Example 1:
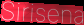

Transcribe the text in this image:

Sirisena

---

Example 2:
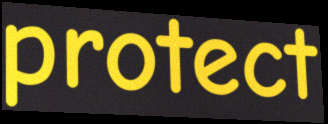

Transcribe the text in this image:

protect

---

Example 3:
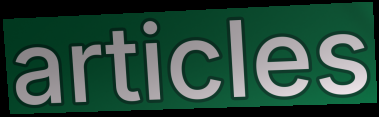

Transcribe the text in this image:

articles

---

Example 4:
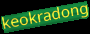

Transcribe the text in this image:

keokradong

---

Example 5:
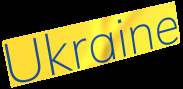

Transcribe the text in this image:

Ukraine